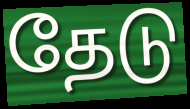
தேடு